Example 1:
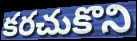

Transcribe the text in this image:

కరచుకొని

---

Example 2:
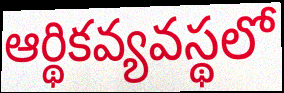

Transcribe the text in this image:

ఆర్థికవ్యవస్థలో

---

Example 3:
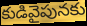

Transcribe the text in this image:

కుడివైపునకు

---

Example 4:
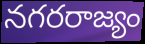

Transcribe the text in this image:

నగరరాజ్యం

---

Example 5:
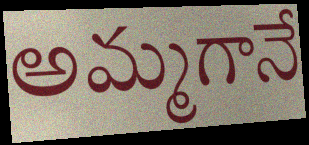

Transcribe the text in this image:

అమ్మగానే